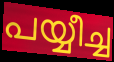
പയ്യീച്ച